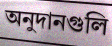
অনুদানগুলি